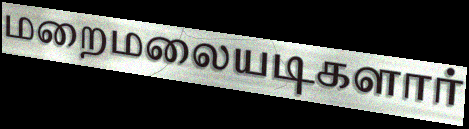
மறைமலையடிகளார்